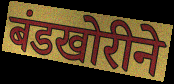
बंडखोरीने